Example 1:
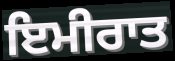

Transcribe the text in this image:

ਇਮੀਰਾਤ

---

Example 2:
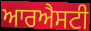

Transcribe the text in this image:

ਆਰਐਸਟੀ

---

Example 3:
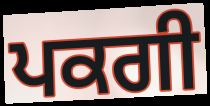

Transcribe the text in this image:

ਪਕਗੀ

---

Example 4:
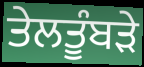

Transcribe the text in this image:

ਤੇਲਤੂੰਬੜੇ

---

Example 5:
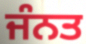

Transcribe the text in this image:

ਜੰਨਤ